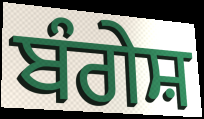
ਬੰਗੇਸ਼